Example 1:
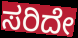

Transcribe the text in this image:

ಸರಿದೇ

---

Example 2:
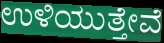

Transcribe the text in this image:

ಉಳಿಯುತ್ತೇವೆ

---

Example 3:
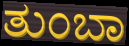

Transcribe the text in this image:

ತುಂಬಾ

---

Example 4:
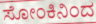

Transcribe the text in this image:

ಸೋಂಕಿನಿಂದ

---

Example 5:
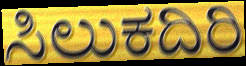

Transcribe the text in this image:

ಸಿಲುಕದಿರಿ